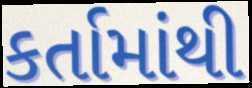
કર્તામાંથી